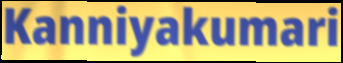
Kanniyakumari